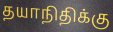
தயாநிதிக்கு